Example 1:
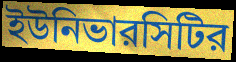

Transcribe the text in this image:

ইউনিভারসিটির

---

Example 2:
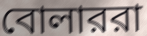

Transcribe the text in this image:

বোলাররা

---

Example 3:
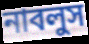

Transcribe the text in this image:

নাবলুস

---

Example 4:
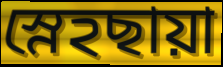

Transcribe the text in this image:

স্নেহছায়া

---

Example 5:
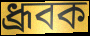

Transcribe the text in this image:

ধ্রূবক